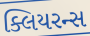
ક્લિયરન્સ